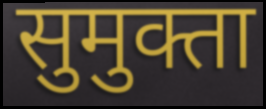
सुमुक्ता